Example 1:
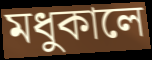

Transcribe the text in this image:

মধুকালে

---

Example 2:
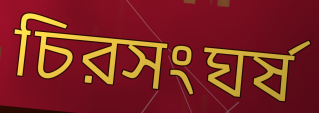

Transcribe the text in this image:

চিরসংঘর্ষ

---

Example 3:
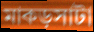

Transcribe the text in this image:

মাকড়সাটা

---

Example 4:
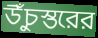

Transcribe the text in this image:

উঁচুস্তরের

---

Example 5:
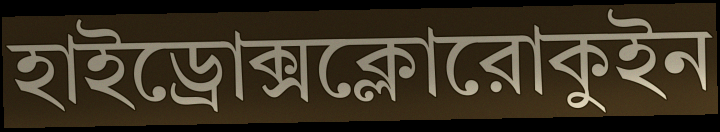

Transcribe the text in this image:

হাইড্রোক্সক্লোরোকুইন